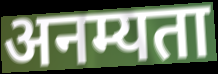
अनम्यता